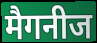
मैगनीज